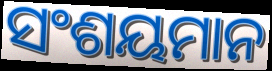
ସଂଶୟମାନ